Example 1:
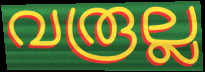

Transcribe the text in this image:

വരൂല്ല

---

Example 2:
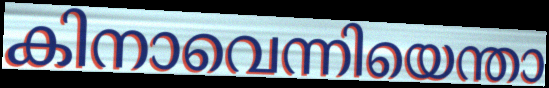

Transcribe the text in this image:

കിനാവെന്നിയെന്താ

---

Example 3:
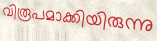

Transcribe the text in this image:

വിരൂപമാക്കിയിരുന്നു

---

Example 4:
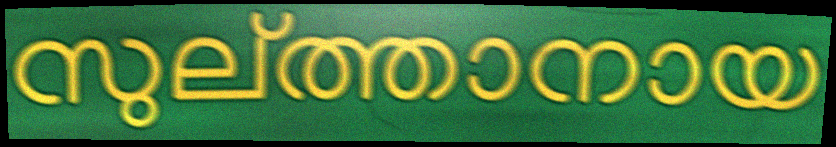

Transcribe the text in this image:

സുല്ത്താനായ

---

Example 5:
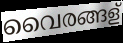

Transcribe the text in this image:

വൈരങ്ങള്